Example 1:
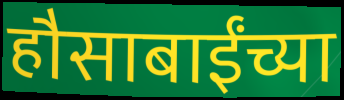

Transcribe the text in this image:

हौसाबाईंच्या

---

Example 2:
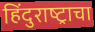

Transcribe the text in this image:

हिंदुराष्ट्राचा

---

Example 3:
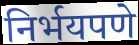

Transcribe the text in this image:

निर्भयपणे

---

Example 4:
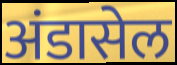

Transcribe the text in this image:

अंडासेल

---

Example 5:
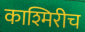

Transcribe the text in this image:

काश्मिरीच